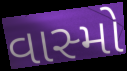
વાસ્મો